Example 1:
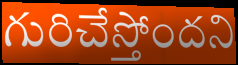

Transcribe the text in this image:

గురిచేస్తోందని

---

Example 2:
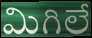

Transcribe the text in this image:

మిగిలే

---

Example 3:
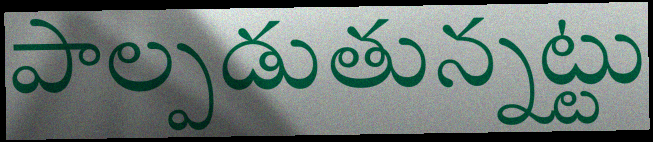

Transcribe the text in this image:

పాల్పడుతున్నట్టు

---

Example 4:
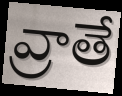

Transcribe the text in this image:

వ్రాతే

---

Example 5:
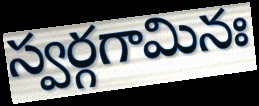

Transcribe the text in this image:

స్వర్గగామినః